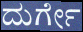
ದುರ್ಗೇ